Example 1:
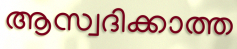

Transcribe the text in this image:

ആസ്വദിക്കാത്ത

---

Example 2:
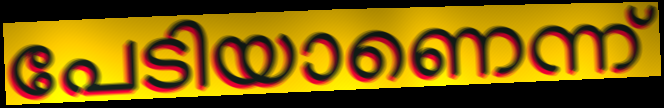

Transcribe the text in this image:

പേടിയാണെന്ന്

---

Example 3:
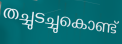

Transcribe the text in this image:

തച്ചുടച്ചുകൊണ്ട്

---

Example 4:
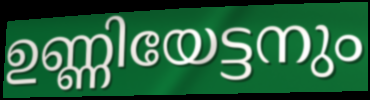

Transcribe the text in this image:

ഉണ്ണിയേട്ടനും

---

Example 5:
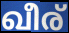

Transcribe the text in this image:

ഖീര്